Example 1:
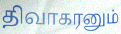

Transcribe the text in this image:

திவாகரனும்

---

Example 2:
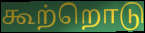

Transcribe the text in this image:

கூற்றொடு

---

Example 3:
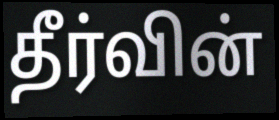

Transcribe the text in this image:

தீர்வின்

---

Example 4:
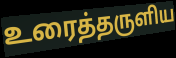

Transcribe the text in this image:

உரைத்தருளிய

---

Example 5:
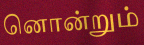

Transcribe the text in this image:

னொன்றும்